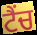
ਟੈਂਚ